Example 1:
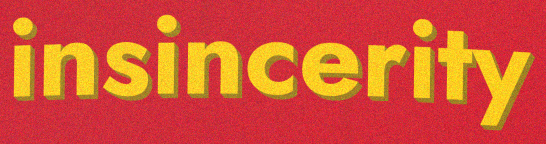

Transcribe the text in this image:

insincerity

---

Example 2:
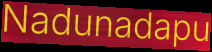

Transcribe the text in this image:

Nadunadapu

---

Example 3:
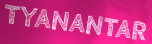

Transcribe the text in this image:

TYANANTAR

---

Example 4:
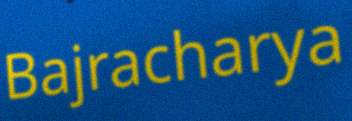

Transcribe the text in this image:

Bajracharya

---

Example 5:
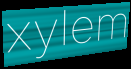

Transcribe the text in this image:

xylem